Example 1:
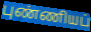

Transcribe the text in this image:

புண்ணியப்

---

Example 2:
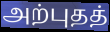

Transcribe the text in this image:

அற்புதத்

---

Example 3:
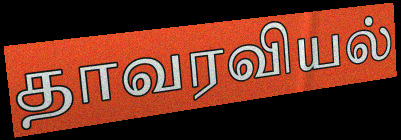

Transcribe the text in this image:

தாவரவியல்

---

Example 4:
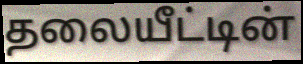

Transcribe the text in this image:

தலையீட்டின்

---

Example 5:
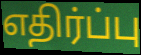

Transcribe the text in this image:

எதிர்ப்பு